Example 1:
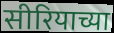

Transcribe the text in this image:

सीरियाच्या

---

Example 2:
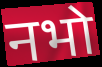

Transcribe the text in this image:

नभो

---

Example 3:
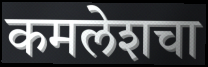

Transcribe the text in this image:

कमलेशचा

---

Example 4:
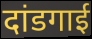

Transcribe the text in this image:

दांडगाई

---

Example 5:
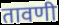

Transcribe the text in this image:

तावणी